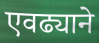
एवढ्याने